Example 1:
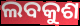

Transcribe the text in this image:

ଲବକୁଶ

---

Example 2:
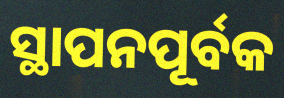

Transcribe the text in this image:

ସ୍ଥାପନପୂର୍ବକ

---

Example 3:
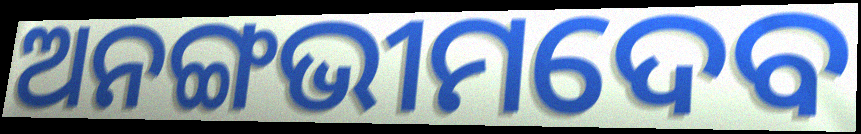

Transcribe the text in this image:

ଅନଙ୍ଗଭୀମଦେବ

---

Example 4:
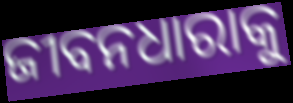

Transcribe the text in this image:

ଜୀବନଧାରାକୁ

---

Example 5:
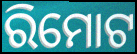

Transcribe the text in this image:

ରିମୋଟ